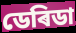
ডেৰিডা